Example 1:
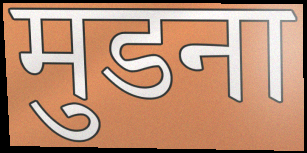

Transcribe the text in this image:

मुडना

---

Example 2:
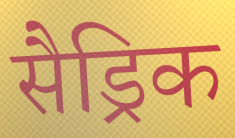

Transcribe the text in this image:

सैड्रिक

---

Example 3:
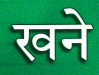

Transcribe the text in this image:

खने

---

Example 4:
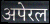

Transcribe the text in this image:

अपेरल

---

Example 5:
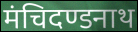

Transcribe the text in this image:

मंचिदण्डनाथ